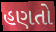
હણતો